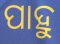
ପାହୁ